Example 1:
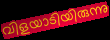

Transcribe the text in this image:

വിളയാടിയിരുന്നു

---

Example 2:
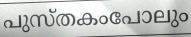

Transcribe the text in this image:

പുസ്തകംപോലും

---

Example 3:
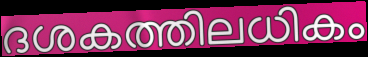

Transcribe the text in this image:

ദശകത്തിലധികം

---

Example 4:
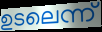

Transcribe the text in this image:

ഉടലെന്ന്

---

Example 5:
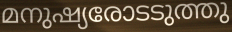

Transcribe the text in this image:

മനുഷ്യരോടടുത്തു